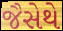
જૈસેથે